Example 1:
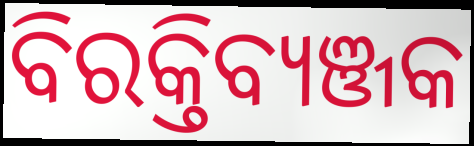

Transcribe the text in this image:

ବିରକ୍ତିବ୍ୟଞ୍ଜକ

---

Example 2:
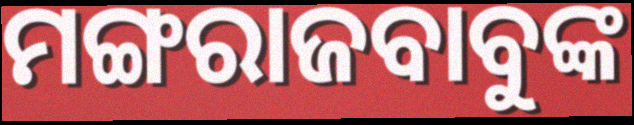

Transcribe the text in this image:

ମଙ୍ଗରାଜବାବୁଙ୍କ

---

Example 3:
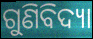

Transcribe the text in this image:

ଗୁଣିବିଦ୍ୟା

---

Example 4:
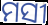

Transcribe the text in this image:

ମସୀ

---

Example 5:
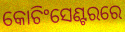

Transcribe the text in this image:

କୋଚିଂସେଣ୍ଟରରେ